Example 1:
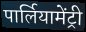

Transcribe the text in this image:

पार्लियामेंट्री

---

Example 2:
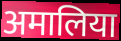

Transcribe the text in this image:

अमालिया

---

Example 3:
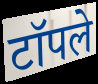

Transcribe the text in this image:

टॉपले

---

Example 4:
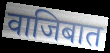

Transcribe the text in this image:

वाजिबात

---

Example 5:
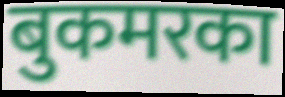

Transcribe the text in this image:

बुकमरका